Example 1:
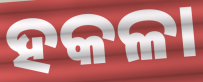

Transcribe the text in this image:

ହକଳା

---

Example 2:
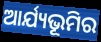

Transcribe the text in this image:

ଆର୍ଯ୍ୟଭୂମିର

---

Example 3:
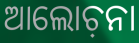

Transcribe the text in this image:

ଆଲୋଚ଼ନା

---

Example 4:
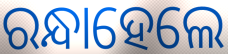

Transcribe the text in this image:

ରନ୍ଧାହେଲେ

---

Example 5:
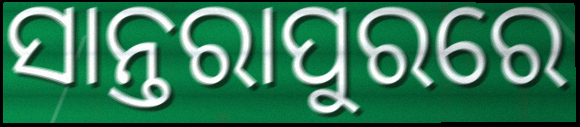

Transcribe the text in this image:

ସାନ୍ତରାପୁରରେ